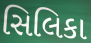
સિલિકા